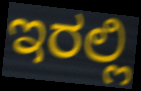
ಇರಲ್ಲಿ